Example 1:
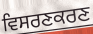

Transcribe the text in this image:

ਵਿਸਰਣਕਰਣ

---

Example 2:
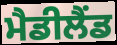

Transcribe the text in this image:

ਮੈਡੀਲੈਂਡ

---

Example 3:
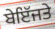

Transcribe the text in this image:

ਬੇਇੱਜਤੇ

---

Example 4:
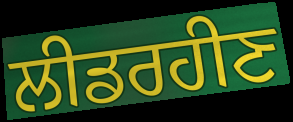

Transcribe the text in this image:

ਲੀਡਰਹੀਣ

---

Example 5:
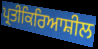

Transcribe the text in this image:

ਪ੍ਰਤੀਕਿਰਿਆਸ਼ੀਲ